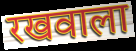
रखवाला